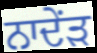
ਨਾਦੇਂੜ